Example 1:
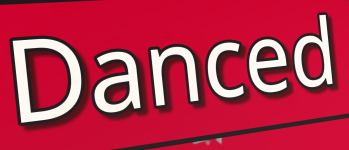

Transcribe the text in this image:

Danced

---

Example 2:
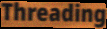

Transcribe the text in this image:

Threading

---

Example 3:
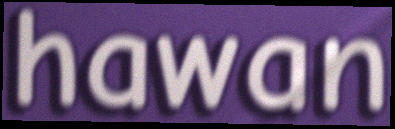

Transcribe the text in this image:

hawan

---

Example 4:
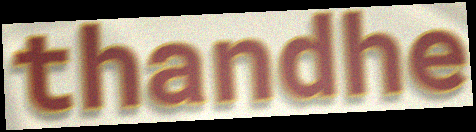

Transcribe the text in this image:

thandhe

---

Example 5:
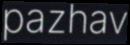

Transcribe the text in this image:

pazhav